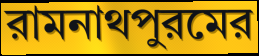
রামনাথপুরমের